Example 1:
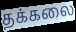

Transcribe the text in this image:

தக்கலை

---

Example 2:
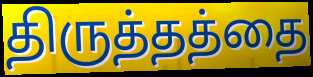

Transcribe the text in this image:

திருத்தத்தை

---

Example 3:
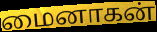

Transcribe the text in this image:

மைனாகன்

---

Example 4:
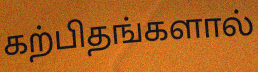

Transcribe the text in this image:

கற்பிதங்களால்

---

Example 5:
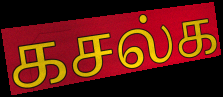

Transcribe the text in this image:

கசல்க